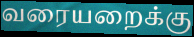
வரையறைக்கு